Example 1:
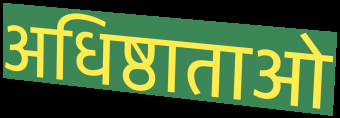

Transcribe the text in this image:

अधिष्ठाताओ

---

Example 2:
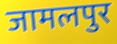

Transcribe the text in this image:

जामलपुर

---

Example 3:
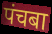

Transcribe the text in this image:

पंचबा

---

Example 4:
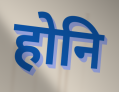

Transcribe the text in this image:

होनि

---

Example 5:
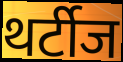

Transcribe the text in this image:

थर्टीज